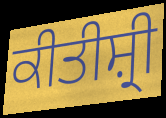
ਕੀਤੀਸ਼੍ਰੀ